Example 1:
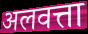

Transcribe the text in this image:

अलवत्ता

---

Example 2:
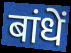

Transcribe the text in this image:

बांधें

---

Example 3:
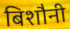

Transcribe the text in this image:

बिशौनी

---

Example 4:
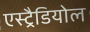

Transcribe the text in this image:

एस्ट्रैडियोल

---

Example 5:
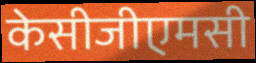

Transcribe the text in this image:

केसीजीएमसी